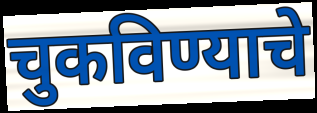
चुकविण्याचे